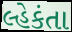
લ્હેકંતા